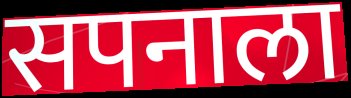
सपनाला